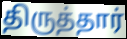
திருத்தார்